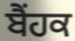
ਬੈਂਹਕ